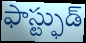
ఫాస్ట్ఫుడ్